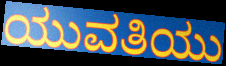
ಯುವತಿಯು